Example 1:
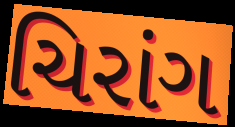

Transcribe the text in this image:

ચિરાંગ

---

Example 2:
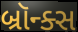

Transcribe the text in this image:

બ્રૉન્ક્સ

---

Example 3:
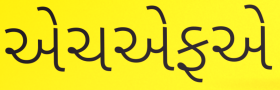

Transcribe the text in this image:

એચએફએ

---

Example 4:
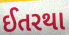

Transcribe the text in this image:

ઈતરથા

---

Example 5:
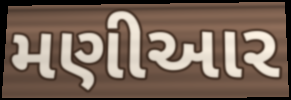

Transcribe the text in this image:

મણીઆર